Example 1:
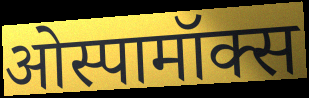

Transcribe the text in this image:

ओस्पामॉक्स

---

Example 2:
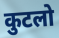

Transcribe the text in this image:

कुटलो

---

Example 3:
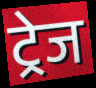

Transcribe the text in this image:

ट्रेज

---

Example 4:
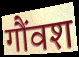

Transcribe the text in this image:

गौंवश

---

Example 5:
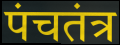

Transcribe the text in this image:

पंचतंत्र